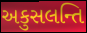
અકુસલન્તિ